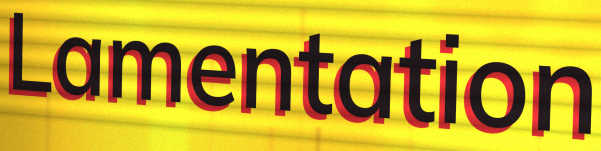
Lamentation